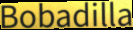
Bobadilla